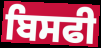
ਬਿਸਫੀ